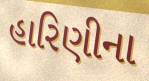
હારિણીના